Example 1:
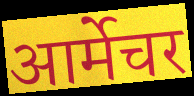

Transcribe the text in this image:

आर्मेचर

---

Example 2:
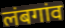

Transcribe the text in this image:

लंबगांव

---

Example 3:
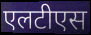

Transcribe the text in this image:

एलटीएस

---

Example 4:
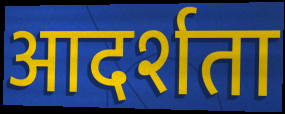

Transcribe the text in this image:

आदर्शता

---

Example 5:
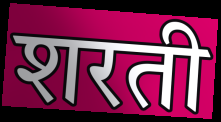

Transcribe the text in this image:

शरती